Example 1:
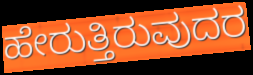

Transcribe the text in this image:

ಹೇರುತ್ತಿರುವುದರ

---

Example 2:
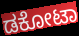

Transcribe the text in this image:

ಡಕೋಟಾ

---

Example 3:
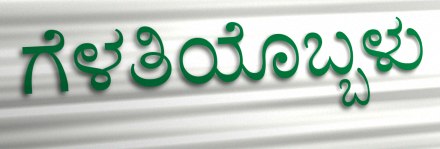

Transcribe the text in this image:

ಗೆಳತಿಯೊಬ್ಬಳು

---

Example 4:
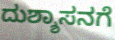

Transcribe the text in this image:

ದುಶ್ಶಾಸನಗೆ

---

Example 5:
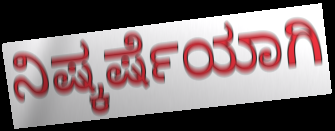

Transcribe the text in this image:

ನಿಷ್ಕರ್ಷೆಯಾಗಿ